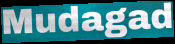
Mudagad